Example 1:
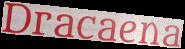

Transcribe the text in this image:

Dracaena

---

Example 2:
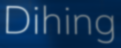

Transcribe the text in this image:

Dihing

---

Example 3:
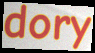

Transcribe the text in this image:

dory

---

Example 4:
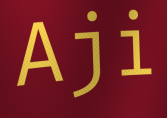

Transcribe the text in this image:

Aji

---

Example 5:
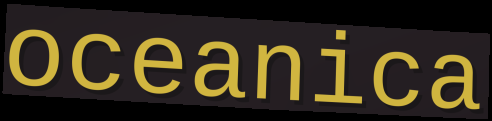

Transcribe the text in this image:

oceanica